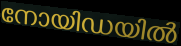
നോയിഡയിൽ